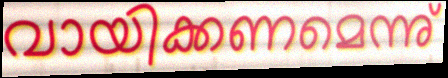
വായിക്കണമെന്നു്